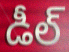
డీల్